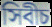
সিবীচ